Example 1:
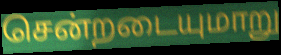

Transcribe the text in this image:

சென்றடையுமாறு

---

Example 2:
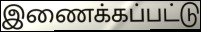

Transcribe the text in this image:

இணைக்கப்பட்டு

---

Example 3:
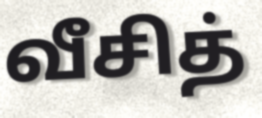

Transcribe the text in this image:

வீசித்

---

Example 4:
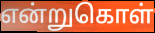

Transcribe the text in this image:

என்றுகொள்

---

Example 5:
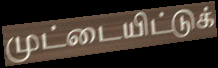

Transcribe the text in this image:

முட்டையிட்டுக்